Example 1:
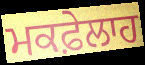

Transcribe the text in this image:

ਮਕਫ਼ੇਲਾਹ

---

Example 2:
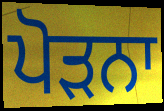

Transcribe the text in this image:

ਪੋੜਨਾ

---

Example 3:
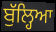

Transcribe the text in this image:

ਬੁੱਲ੍ਹਿਆ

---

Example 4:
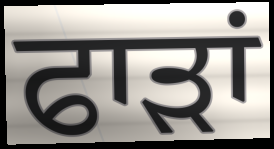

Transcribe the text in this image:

ਫਾੜਾਂ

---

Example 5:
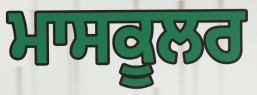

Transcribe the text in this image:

ਮਾਸਕੂਲਰ